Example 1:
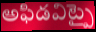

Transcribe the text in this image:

అఫిడవిట్పై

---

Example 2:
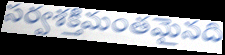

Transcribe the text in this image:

సర్వశక్తిమంతమైనది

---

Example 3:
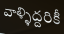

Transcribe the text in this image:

వాళ్ళిద్దరికీ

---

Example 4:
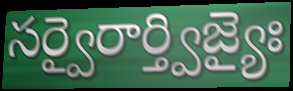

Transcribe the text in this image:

సర్వైరార్త్విజ్యైః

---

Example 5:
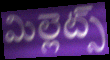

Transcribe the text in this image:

మిల్లెట్స్